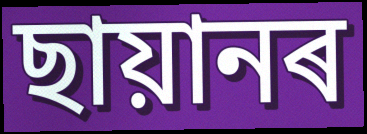
ছায়ানৰ